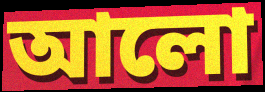
আলো